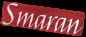
Smaran